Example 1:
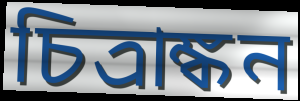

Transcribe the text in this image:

চিত্রাঙ্কন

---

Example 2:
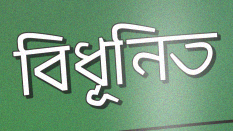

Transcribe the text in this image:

বিধূনিত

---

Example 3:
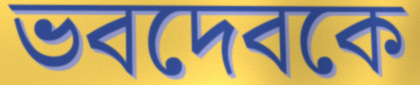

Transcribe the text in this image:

ভবদেবকে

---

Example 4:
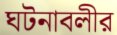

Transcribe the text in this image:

ঘটনাবলীর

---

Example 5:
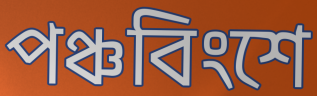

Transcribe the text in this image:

পঞ্চবিংশে